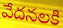
వేదనలకి